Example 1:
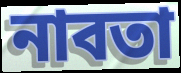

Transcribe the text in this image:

নাবতা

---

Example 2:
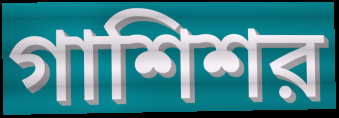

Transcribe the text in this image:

গাশিশর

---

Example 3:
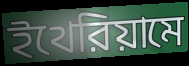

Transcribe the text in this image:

ইথেরিয়ামে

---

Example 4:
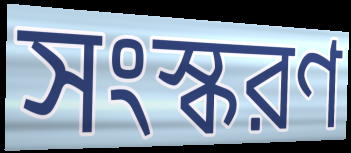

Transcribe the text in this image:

সংস্করণ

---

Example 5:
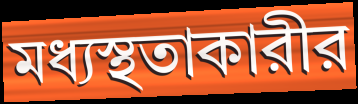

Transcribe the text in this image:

মধ্যস্থতাকারীর